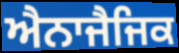
ਐਨਾਜੈਜਿਕ